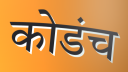
कोडंच